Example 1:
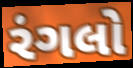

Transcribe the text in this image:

રંગલો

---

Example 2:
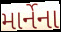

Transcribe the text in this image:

માર્નેના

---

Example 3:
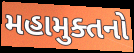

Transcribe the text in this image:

મહામુક્તનો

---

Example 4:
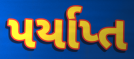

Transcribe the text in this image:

પર્યાપ્ત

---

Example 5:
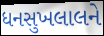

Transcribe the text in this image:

ધનસુખલાલને